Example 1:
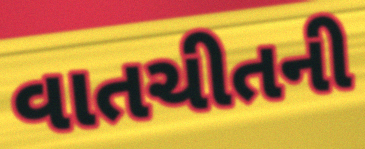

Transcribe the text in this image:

વાતચીતની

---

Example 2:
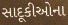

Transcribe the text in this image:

સાદૂકીઓના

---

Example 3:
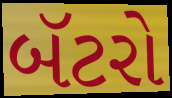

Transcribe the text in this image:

બૅટરો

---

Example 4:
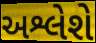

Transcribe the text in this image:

અશ્લેશે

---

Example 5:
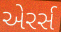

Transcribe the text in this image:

એરર્સ